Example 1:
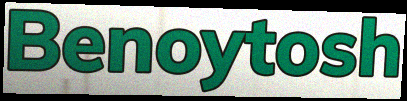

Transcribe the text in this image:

Benoytosh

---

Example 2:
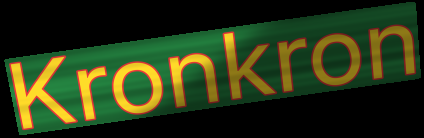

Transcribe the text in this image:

Kronkron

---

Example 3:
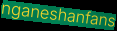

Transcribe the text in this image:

nganeshanfans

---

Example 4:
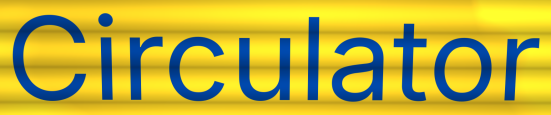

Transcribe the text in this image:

Circulator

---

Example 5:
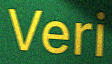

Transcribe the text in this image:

Veri